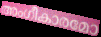
അംഗീകാരമോ